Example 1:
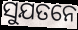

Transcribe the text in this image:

ସୁଯତନେ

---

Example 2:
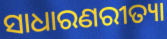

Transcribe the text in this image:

ସାଧାରଣରୀତ୍ୟା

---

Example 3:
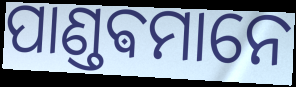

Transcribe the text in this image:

ପାଣ୍ଡଵମାନେ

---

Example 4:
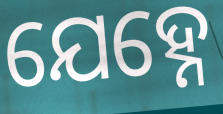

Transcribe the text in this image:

ଯେହ୍ନେ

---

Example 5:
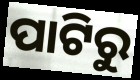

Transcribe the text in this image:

ପାଟିରୁ